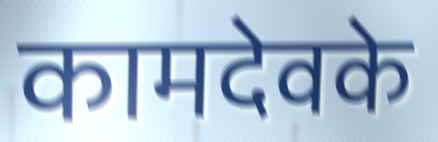
कामदेवके